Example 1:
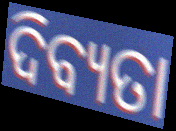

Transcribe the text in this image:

ଦିବ୍ୟତା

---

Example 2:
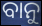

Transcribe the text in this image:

ବାନୁ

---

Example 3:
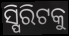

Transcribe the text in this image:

ସ୍ପିରିଟକୁ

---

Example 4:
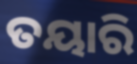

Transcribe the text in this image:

ତୟାରି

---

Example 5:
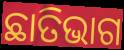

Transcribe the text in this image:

ଛାତିଭାଗ